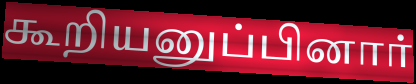
கூறியனுப்பினார்